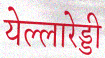
येल्लारेड्डी